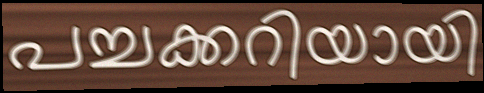
പച്ചക്കറിയായി